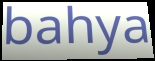
bahya